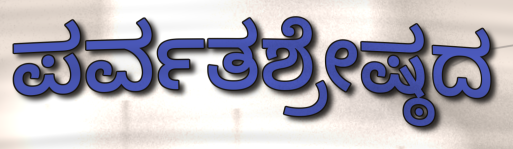
ಪರ್ವತಶ್ರೇಷ್ಠದ